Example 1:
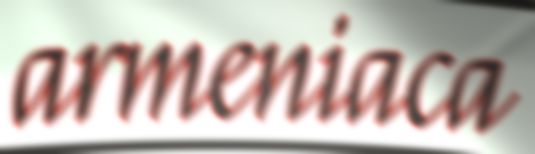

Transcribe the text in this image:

armeniaca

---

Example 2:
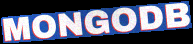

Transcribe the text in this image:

MONGODB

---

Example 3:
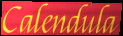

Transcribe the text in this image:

Calendula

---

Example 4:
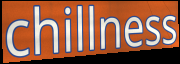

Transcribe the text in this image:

chillness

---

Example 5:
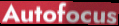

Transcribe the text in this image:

Autofocus